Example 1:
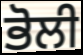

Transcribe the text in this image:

ਭੋਲੀ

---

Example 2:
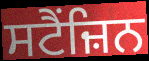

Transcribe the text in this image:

ਸਟੈਂਜ਼ਿਨ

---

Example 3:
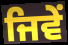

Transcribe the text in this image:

ਜਿਵੇਂ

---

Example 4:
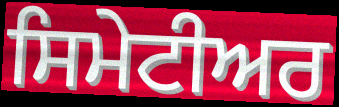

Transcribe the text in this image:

ਸਿਮੇਟੀਅਰ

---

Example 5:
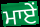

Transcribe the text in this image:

ਮਾਏਂ